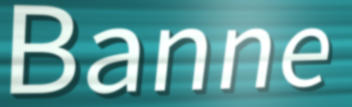
Banne